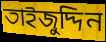
তাইজুদ্দিন